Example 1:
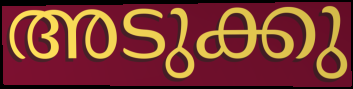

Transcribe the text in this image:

അടുക്കു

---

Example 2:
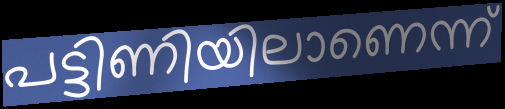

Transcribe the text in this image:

പട്ടിണിയിലാണെന്ന്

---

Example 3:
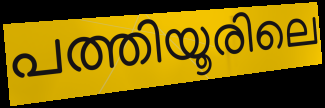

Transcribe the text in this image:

പത്തിയൂരിലെ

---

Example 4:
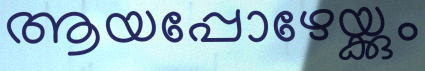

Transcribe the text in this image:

ആയപ്പോഴേയ്ക്കും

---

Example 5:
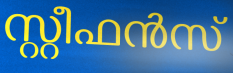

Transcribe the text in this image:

സ്റ്റീഫൻസ്